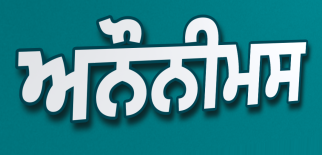
ਅਨੌਨੀਮਸ